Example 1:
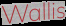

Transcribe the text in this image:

Wallis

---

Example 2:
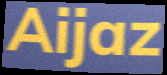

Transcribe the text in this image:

Aijaz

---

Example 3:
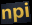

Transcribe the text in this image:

npi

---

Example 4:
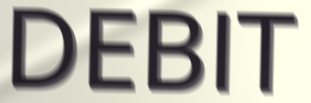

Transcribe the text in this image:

DEBIT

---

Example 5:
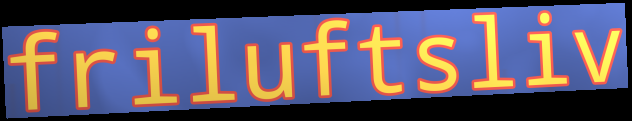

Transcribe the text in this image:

friluftsliv